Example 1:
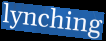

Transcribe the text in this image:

lynching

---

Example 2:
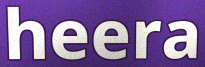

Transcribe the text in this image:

heera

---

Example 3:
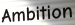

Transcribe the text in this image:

Ambition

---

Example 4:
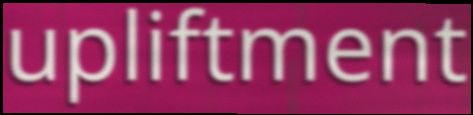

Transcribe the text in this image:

upliftment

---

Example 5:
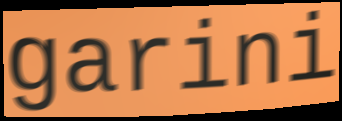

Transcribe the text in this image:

garini